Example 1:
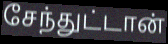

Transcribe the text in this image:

சேந்துட்டான்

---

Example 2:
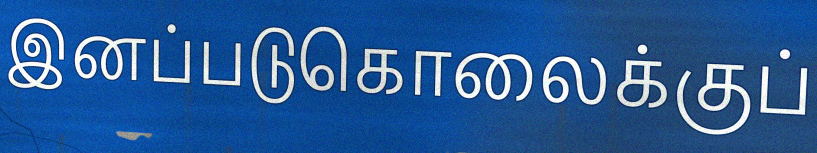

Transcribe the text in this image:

இனப்படுகொலைக்குப்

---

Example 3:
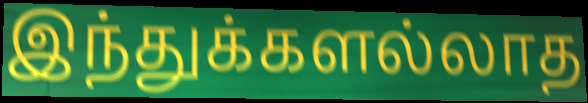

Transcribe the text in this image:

இந்துக்களல்லாத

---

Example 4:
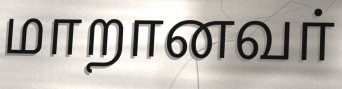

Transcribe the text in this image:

மாறானவர்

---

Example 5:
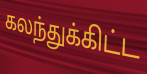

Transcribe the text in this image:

கலந்துக்கிட்ட